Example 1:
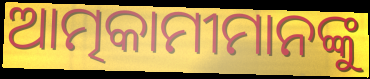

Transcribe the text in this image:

ଆତ୍ମକାମୀମାନଙ୍କୁ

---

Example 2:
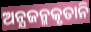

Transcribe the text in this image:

ଅନ୍ଯଜନ୍ମକୃତାନି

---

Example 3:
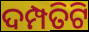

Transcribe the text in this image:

ଦମ୍ପତିଟି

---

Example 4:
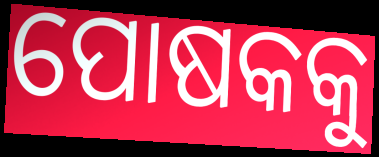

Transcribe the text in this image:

ପୋଷକକୁ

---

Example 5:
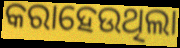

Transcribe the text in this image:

କରାହେଉଥିଲା